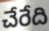
చేరేది